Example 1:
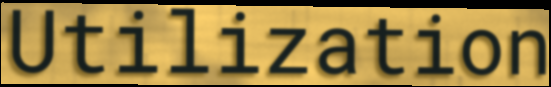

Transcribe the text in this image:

Utilization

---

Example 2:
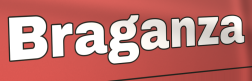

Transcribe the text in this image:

Braganza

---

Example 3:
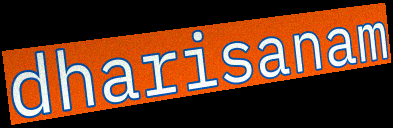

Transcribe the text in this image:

dharisanam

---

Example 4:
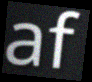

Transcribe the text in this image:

af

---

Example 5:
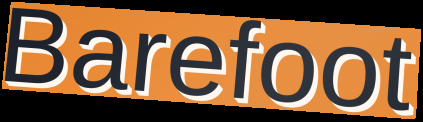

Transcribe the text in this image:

Barefoot